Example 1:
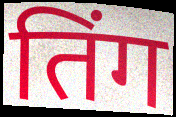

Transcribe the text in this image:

तिंग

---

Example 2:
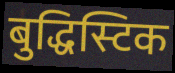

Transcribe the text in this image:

बुद्धिस्टिक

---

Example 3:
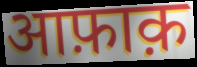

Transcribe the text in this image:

आफ़ाक़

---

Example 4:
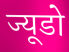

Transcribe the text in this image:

ज्यूडो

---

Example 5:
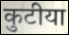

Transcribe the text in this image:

कुटीया